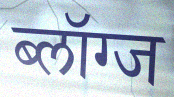
ब्लॉग्ज